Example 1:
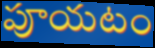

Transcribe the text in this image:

పూయటం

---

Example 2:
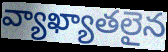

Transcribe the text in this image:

వ్యాఖ్యాతలైన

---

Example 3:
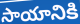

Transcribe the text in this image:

సాయానికి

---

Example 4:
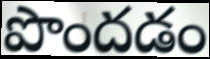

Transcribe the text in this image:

పొందడం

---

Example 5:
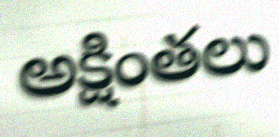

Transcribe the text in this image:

అక్షింతలు